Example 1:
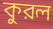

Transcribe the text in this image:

কুরল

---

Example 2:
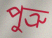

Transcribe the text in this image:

পুত্রু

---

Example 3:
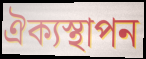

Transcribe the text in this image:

ঐক্যস্থাপন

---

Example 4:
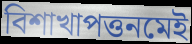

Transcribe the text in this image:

বিশাখাপত্তনমেই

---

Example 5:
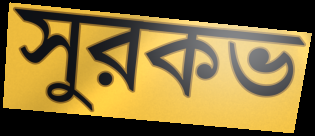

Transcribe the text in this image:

সুরকভ